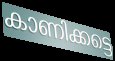
കാണിക്കട്ടെ